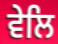
ਵੇਲਿ